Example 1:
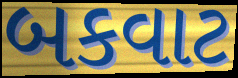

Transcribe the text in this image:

બકવાટ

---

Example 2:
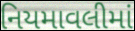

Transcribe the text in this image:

નિયમાવલીમાં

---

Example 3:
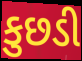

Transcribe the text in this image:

કુછડી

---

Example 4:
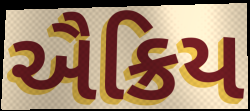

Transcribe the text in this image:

ઐક્રિય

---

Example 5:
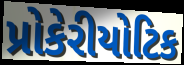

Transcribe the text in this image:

પ્રોકેરીયોટિક